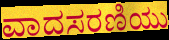
ವಾದಸರಣಿಯು